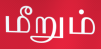
மீறும்